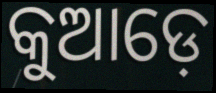
କୁଆଡ଼େ